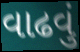
વાઢવું